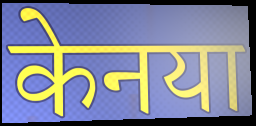
केनया